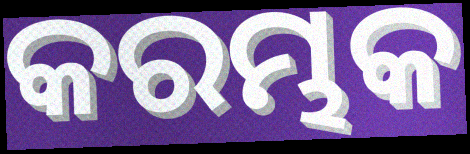
କରମ୍ଭକ